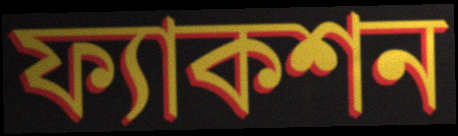
ফ্যাকশন